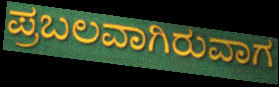
ಪ್ರಬಲವಾಗಿರುವಾಗ